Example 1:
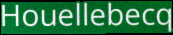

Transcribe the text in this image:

Houellebecq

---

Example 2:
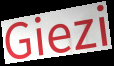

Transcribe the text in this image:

Giezi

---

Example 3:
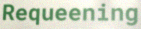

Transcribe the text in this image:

Requeening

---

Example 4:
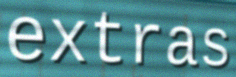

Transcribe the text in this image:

extras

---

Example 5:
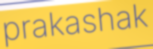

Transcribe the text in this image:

prakashak